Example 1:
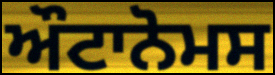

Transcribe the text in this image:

ਔਟਾਨੋਮਸ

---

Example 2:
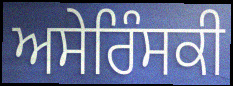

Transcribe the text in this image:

ਅਸੇਰਿੰਸਕੀ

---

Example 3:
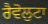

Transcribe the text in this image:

ਰੈਵੋਲੁਟਾ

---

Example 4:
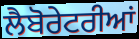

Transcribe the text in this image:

ਲੈਬੋਰੇਟਰੀਆਂ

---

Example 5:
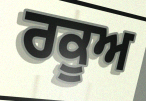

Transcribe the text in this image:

ਰਕੂਅ